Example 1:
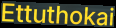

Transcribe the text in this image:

Ettuthokai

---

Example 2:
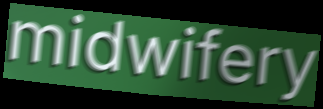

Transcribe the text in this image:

midwifery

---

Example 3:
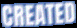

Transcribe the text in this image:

CREATED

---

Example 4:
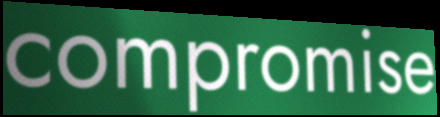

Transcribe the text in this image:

compromise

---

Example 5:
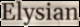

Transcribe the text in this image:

Elysian